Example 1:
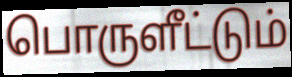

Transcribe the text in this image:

பொருளீட்டும்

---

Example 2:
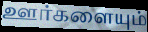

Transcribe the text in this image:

ஊர்களையும்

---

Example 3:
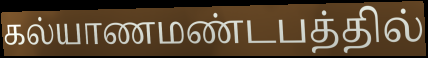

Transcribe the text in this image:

கல்யாணமண்டபத்தில்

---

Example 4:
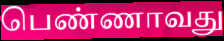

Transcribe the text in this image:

பெண்ணாவது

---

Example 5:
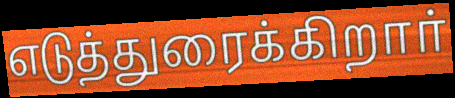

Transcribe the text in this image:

எடுத்துரைக்கிறார்